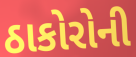
ઠાકોરોની